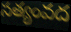
సత్యంవద